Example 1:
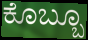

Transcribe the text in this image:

ಕೊಬ್ಬೂ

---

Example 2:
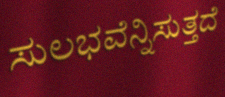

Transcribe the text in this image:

ಸುಲಭವೆನ್ನಿಸುತ್ತದೆ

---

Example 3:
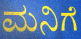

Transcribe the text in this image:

ಮನಿಗೆ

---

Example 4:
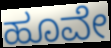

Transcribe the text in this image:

ಹೂವೇ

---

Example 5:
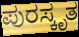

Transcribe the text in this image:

ಪುರಸ್ಕೃತ